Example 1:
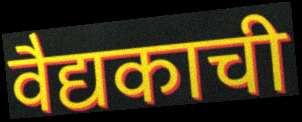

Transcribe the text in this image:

वैद्यकाची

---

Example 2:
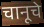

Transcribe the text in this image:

चानूचे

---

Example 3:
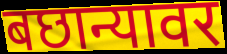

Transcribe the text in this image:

बछान्यावर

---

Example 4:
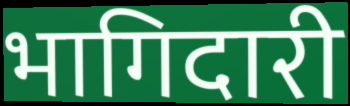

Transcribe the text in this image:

भागिदारी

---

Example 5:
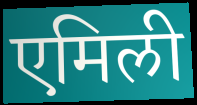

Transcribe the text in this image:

एमिली